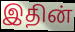
இதின்